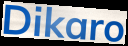
Dikaro